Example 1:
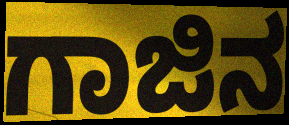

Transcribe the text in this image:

ಗಾಜಿನ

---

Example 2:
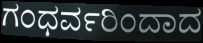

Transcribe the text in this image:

ಗಂಧರ್ವರಿಂದಾದ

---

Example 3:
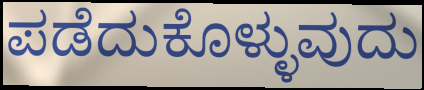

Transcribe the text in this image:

ಪಡೆದುಕೊಳ್ಳುವುದು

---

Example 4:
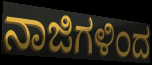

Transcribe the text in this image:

ನಾಜಿಗಳಿಂದ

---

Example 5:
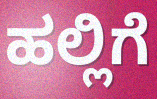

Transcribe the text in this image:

ಹಲ್ಲಿಗೆ